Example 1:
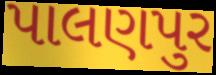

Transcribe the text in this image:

પાલણપુર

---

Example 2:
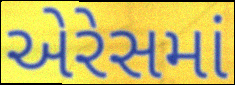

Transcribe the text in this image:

એરેસમાં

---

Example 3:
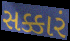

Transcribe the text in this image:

સક્કારં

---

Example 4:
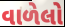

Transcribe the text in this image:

વાળેલો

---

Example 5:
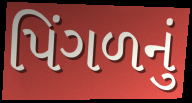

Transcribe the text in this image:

પિંગળનું